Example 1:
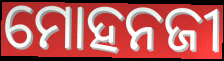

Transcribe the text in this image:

ମୋହନଜୀ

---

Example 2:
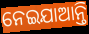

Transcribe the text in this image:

ନେଇଯାଆନ୍ତି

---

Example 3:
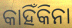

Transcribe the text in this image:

କାହିଁକିନା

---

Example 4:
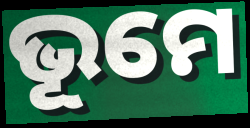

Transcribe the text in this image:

ଭୂମେ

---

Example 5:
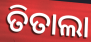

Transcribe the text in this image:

ତିତାଲା